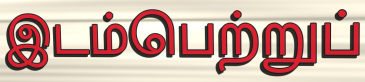
இடம்பெற்றுப்